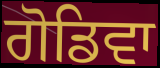
ਗੋਡਿਵਾ